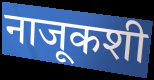
नाजूकशी